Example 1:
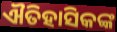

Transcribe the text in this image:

ଐତିହାସିକଙ୍କ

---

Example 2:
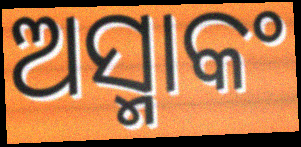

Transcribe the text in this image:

ଅସ୍ମାକଂ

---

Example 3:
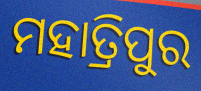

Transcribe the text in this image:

ମହାତ୍ରିପୁର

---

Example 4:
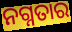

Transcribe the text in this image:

ନଗ୍ନତାର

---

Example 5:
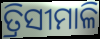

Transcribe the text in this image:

ତ୍ରିସୀମାଳି